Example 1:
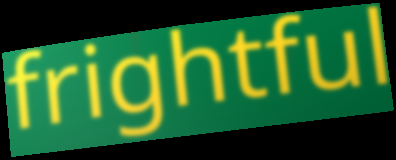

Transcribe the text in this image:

frightful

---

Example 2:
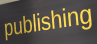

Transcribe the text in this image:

publishing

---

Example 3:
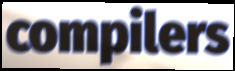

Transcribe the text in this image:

compilers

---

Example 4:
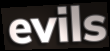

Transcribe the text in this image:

evils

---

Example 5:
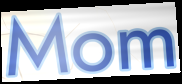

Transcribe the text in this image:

Mom